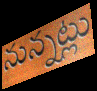
నున్నట్లు